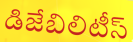
డిజేబిలిటీస్